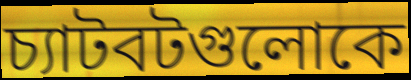
চ্যাটবটগুলোকে